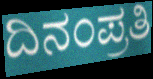
ದಿನಂಪ್ರತಿ